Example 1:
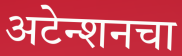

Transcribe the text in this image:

अटेन्शनचा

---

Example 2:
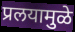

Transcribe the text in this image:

प्रलयामुळे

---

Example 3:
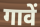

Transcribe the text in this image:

गावें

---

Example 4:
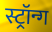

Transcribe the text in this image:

स्ट्रॉन्ग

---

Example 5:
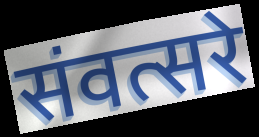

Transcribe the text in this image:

संवत्सरे